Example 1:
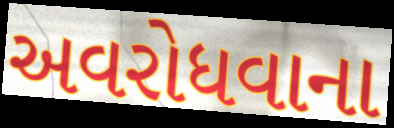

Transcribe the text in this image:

અવરોધવાના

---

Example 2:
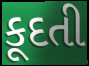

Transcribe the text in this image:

કૂદતી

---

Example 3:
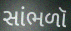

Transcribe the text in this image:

સાંભળૉ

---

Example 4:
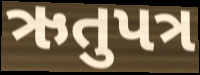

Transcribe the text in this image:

ઋતુપત્ર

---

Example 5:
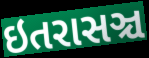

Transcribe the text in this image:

ઇતરાસઞ્ચ